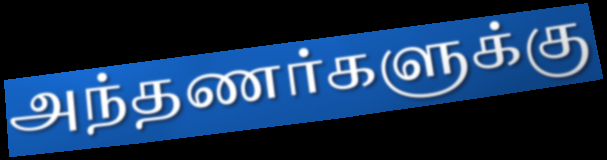
அந்தணர்களுக்கு